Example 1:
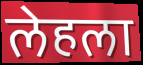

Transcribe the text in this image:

लेहला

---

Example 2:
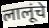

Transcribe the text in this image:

लालूंचे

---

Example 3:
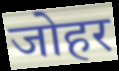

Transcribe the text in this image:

जोहर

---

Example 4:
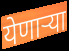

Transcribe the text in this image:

येणाऱ्या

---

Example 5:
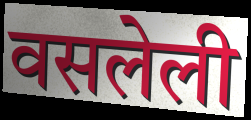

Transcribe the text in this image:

वसलेली